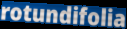
rotundifolia